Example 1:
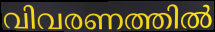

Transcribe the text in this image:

വിവരണത്തിൽ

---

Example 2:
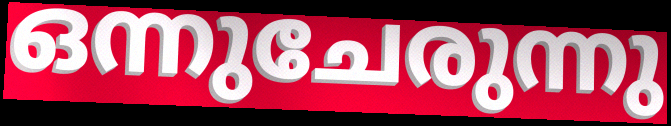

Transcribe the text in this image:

ഒന്നുചേരുന്നു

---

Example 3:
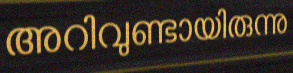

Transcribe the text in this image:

അറിവുണ്ടായിരുന്നു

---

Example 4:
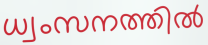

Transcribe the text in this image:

ധ്വംസനത്തിൽ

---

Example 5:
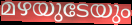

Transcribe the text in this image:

മഴയുടേയും